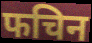
फचिन